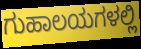
ಗುಹಾಲಯಗಳಲ್ಲಿ